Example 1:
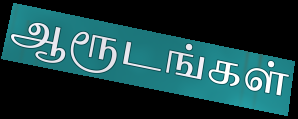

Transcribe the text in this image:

ஆரூடங்கள்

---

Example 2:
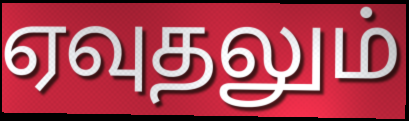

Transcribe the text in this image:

ஏவுதலும்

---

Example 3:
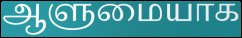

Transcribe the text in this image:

ஆளுமையாக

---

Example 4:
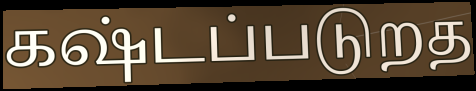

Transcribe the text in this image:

கஷ்டப்படுறத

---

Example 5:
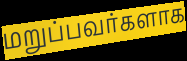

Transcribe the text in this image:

மறுப்பவர்களாக